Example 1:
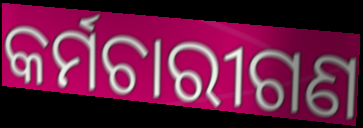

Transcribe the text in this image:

କର୍ମଚାରୀଗଣ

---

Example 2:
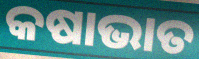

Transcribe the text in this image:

କଷାଭାତ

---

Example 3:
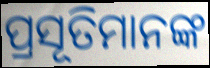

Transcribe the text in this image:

ପ୍ରସୂତିମାନଙ୍କ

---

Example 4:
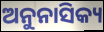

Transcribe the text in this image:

ଅନୁନାସିକ୍ୟ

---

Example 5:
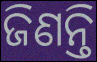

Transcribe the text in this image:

ଜିଣନ୍ତି